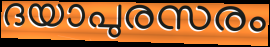
ദയാപുരസരം